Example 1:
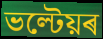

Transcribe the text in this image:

ভল্টেয়ৰ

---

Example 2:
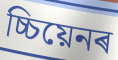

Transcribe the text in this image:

চ্চিয়েনৰ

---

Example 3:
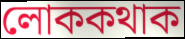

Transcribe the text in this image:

লোককথাক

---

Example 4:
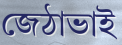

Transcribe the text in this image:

জেঠাভাই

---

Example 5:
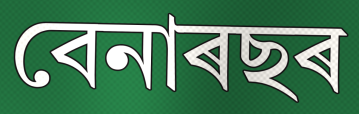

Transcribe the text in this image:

বেনাৰছৰ